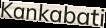
Kankabati